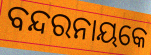
ବନ୍ଦରନାୟକେ